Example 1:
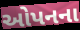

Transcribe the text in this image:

ઓપનના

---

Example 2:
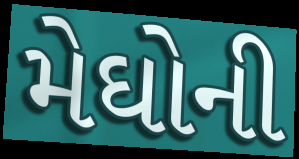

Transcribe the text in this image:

મેઘોની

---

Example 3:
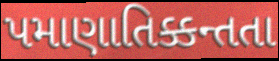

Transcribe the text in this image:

પમાણાતિક્કન્તતા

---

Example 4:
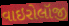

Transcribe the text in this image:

વાઇરોલૉજી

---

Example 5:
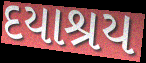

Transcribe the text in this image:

દયાશ્રય